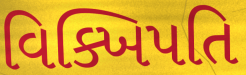
વિક્ખિપતિ